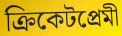
ক্রিকেটপ্রেমী